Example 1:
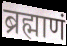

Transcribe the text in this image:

ब्रह्माणं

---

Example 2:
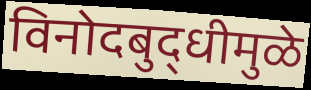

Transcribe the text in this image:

विनोदबुद्धीमुळे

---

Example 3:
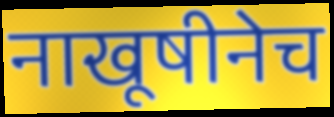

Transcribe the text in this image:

नाखूषीनेच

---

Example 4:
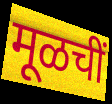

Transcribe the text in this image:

मूळचीं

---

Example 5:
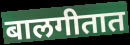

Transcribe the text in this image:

बालगीतात